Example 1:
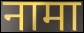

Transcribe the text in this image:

नामा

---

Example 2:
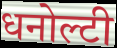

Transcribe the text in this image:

धनोल्‍टी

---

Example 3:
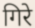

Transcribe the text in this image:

गिरे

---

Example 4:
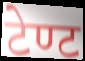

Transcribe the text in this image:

टेण्ट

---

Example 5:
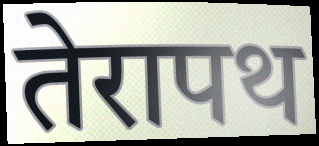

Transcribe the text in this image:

तेरापथ